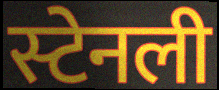
स्‍टेनली